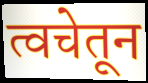
त्वचेतून